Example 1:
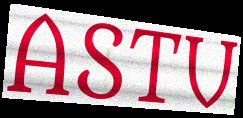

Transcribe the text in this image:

ASTU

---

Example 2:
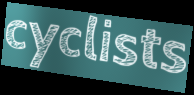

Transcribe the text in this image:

cyclists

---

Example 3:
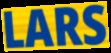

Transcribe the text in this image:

LARS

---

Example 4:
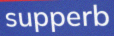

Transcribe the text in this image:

supperb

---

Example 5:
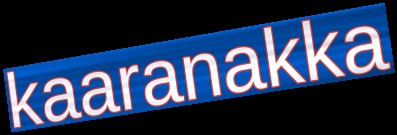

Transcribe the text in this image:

kaaranakka